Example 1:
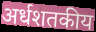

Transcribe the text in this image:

अर्धशतकीय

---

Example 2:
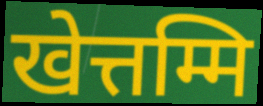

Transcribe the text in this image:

खेत्तम्मि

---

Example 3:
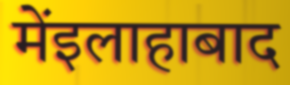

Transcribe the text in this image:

मेंइलाहाबाद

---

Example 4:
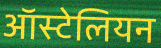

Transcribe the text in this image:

ऑस्टेलियन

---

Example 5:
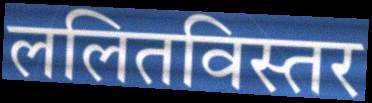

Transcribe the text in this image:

ललितविस्तर